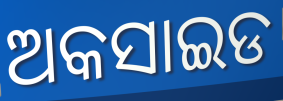
ଅକସାଇଡ